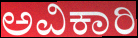
ಅವಿಕಾರಿ